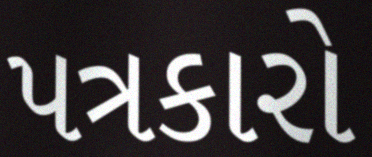
પત્રકારો